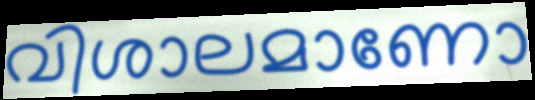
വിശാലമാണോ